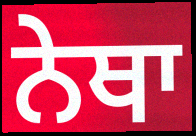
ਨੇਥਾ